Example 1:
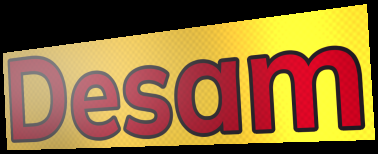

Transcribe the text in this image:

Desam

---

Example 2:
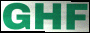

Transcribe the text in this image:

GHF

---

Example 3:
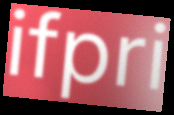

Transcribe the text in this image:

ifpri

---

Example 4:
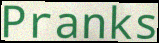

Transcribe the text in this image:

Pranks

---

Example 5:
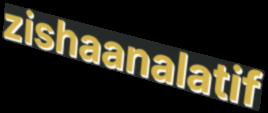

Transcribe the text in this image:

zishaanalatif